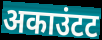
अकाउंटट